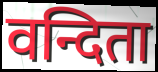
वन्दिता